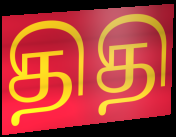
திதி